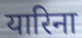
यारिना